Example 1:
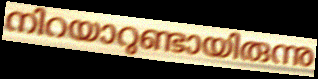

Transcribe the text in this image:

നിറയാറുണ്ടായിരുന്നു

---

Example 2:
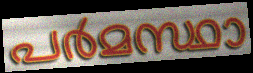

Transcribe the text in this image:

പർമസ്ഥാ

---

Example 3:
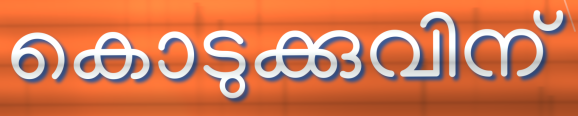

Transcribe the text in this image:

കൊടുക്കുവിന്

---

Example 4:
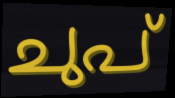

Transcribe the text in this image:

ചുപ്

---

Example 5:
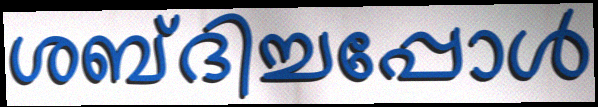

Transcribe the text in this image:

ശബ്ദിച്ചപ്പോൾ